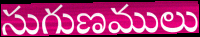
సుగుణములు